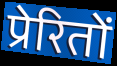
प्रेरितों